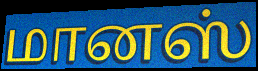
மானஸ்